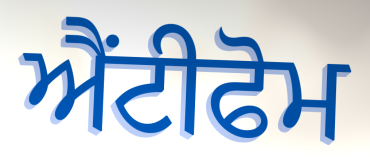
ਐਂਟੀਫੋਮ